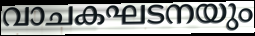
വാചകഘടനയും